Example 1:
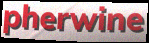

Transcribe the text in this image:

pherwine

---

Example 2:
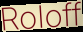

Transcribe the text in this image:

Roloff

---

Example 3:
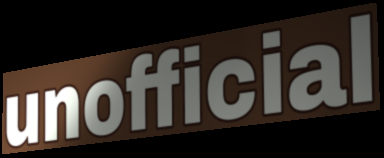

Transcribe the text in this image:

unofficial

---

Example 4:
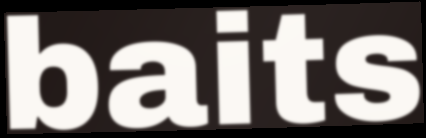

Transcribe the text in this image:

baits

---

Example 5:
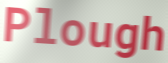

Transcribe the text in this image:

Plough